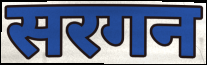
सरगन